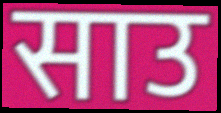
साउ